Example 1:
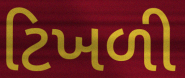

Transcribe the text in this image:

ટિખળી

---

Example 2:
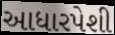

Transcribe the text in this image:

આધારપેશી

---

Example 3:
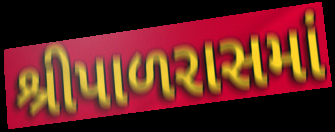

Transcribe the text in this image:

શ્રીપાળરાસમાં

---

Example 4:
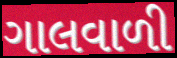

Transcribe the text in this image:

ગાલવાળી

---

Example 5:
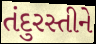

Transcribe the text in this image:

તંદુરસ્તીને